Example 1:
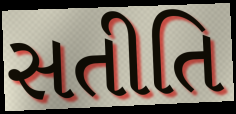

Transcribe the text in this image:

સતીતિ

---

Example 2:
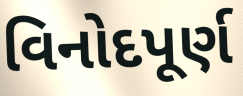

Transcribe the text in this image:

વિનોદપૂર્ણ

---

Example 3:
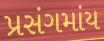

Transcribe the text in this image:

પ્રસંગમાંય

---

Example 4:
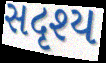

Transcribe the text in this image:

સદૃશ્ય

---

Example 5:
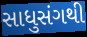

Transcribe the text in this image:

સાધુસંગથી